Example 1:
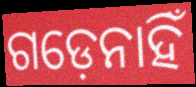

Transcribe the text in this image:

ଗଡ଼େନାହିଁ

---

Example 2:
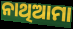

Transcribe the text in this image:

ନାଥିଆମା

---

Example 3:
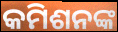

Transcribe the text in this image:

କମିଶନଙ୍କ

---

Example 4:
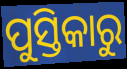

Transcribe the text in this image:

ପୁସ୍ତିକାରୁ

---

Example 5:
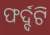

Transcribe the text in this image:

ଫର୍ଦ୍ଦଟି